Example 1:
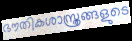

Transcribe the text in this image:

ഭൗതികശാസ്ത്രങ്ങളുടെ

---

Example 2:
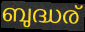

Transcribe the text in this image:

ബുദ്ധര്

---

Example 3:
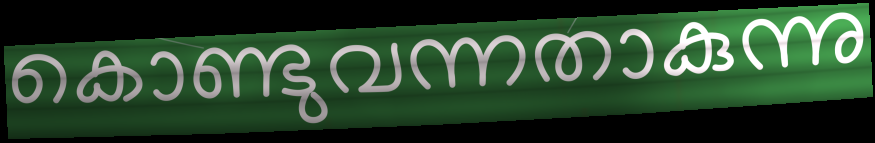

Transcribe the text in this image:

കൊണ്ടുവന്നതാകുന്നു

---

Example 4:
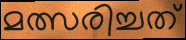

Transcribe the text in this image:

മത്സരിച്ചത്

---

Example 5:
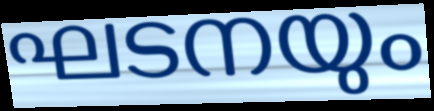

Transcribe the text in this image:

ഘടനയും